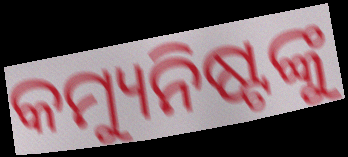
କମ୍ୟୁନିଷ୍ଟଙ୍କୁ